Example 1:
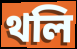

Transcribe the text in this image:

থলি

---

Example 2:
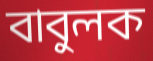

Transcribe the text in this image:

বাবুলক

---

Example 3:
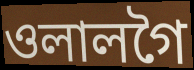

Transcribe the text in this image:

ওলালগৈ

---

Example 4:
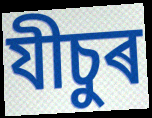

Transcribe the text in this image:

যীচুৰ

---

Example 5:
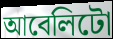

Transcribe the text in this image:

আবেলিটো